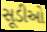
સૂડીઓ